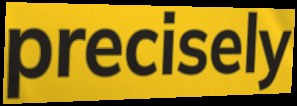
precisely